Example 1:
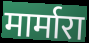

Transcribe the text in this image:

मार्मारा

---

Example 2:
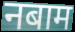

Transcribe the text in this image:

नबाम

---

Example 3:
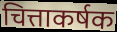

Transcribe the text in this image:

चित्ताकर्षक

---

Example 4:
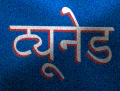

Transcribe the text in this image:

ट्यूनेड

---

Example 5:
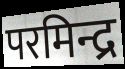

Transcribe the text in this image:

परमिन्द्र